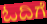
ಓದಿಗೆ